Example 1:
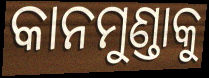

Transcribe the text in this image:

କାନମୁଣ୍ଡାକୁ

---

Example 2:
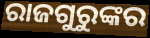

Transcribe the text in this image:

ରାଜଗୁରୁଙ୍କର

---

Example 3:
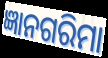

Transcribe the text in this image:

ଜ୍ଞାନଗରିମା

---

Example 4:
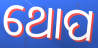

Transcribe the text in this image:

ଥୋପ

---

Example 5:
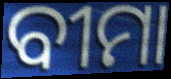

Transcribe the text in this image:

ବୀମା